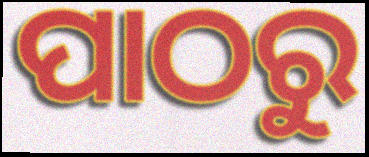
ପାଠରୁ